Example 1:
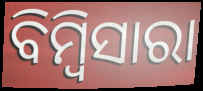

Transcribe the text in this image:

ବିମ୍ବିସାରା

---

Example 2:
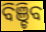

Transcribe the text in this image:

ବିଞ୍ଚିବ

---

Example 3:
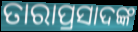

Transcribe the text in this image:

ତାରାପ୍ରସାଦଙ୍କ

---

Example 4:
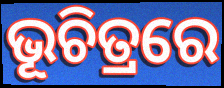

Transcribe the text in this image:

ଭୂଚିତ୍ରରେ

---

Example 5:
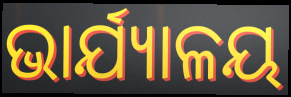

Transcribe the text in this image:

ଭାର୍ଯ୍ୟାଳୟ